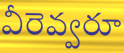
వీరెవ్వరూ